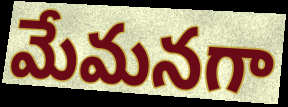
మేమనగా